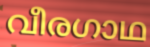
വീരഗാഥ